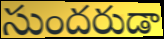
సుందరుడా